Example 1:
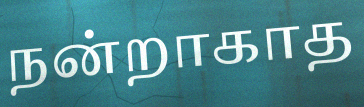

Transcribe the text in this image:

நன்றாகாத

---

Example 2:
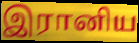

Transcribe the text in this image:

இரானிய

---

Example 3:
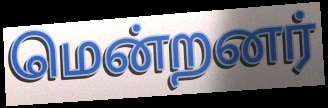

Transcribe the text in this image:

மென்றனர்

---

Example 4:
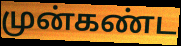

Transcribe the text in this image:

முன்கண்ட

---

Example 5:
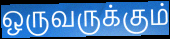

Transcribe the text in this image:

ஒருவருக்கும்